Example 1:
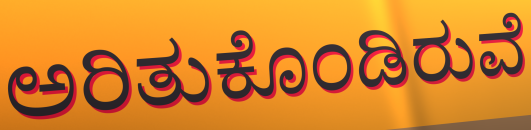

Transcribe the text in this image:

ಅರಿತುಕೊಂಡಿರುವೆ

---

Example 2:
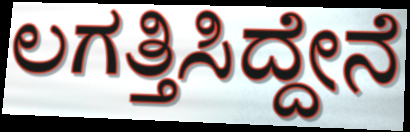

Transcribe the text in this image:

ಲಗತ್ತಿಸಿದ್ದೇನೆ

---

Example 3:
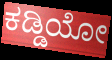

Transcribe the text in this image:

ಕಡ್ಡಿಯೋ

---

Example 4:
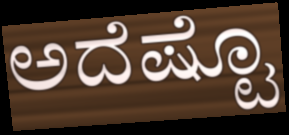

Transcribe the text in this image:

ಅದೆಷ್ಟೊ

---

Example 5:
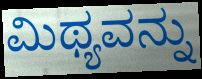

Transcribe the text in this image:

ಮಿಥ್ಯವನ್ನು